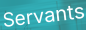
Servants